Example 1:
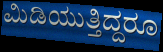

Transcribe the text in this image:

ಮಿಡಿಯುತ್ತಿದ್ದರೂ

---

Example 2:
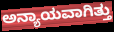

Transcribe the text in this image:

ಅನ್ಯಾಯವಾಗಿತ್ತು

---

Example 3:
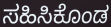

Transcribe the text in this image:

ಸಹಿಸಿಕೊಂಡ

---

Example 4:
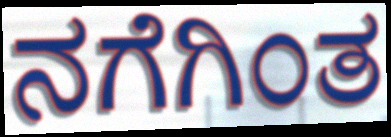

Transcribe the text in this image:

ನಗೆಗಿಂತ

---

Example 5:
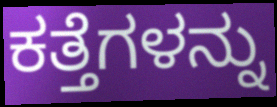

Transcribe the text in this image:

ಕತ್ತೆಗಳನ್ನು